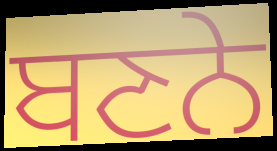
ਬਣਨੇ